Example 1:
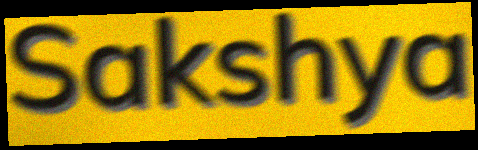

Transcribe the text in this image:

Sakshya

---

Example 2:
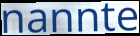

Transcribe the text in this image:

nannte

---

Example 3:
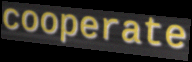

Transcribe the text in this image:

cooperate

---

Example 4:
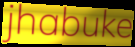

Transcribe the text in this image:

jhabuke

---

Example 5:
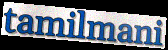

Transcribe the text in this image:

tamilmani